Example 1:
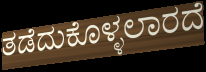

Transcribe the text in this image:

ತಡೆದುಕೊಳ್ಳಲಾರದೆ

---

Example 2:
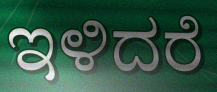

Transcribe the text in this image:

ಇಳಿದರೆ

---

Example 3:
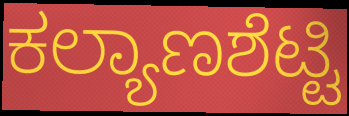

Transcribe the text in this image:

ಕಲ್ಯಾಣಶೆಟ್ಟಿ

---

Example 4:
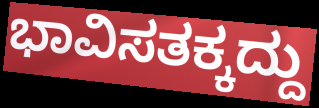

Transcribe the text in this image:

ಭಾವಿಸತಕ್ಕದ್ದು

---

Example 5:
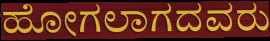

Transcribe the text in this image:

ಹೋಗಲಾಗದವರು